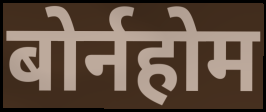
बोर्नहोम